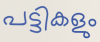
പട്ടികളും